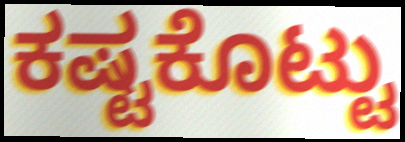
ಕಷ್ಟಕೊಟ್ಟು